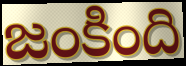
జంకింది